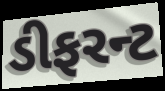
ડીફરન્ટ